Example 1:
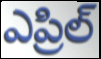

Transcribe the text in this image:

ఎప్రిల్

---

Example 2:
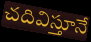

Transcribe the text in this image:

చదివిస్తూనే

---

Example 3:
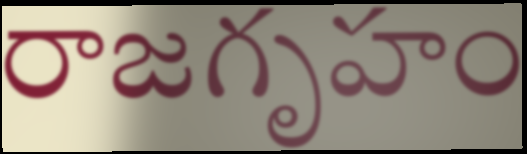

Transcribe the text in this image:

రాజగృహం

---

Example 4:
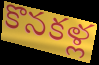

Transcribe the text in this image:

కొనకళ్ల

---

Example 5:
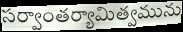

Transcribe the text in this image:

సర్వాంతర్యామిత్వమును